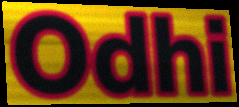
Odhi